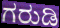
ಗರುಡಿ